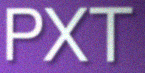
PXT